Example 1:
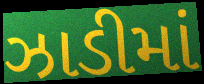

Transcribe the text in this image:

ઝાડીમાં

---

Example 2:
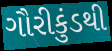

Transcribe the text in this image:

ગૌરીકુંડથી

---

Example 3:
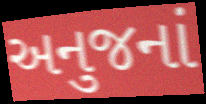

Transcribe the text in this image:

અનુજનાં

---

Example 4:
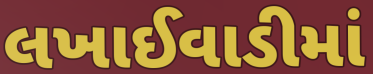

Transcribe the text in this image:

લખાઈવાડીમાં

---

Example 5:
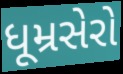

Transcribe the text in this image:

ધૂમ્રસેરો